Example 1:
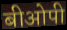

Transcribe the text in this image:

बीओपी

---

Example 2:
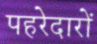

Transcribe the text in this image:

पहरेदारों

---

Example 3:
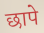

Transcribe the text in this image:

छापे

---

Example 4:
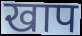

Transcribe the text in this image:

खाप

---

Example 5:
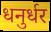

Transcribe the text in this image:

धनुर्धर